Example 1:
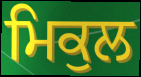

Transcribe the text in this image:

ਮਿਕੁਲ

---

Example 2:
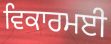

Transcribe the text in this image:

ਵਿਕਾਰਮਈ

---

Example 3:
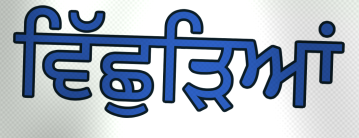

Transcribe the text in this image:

ਵਿੱਛੁੜਿਆਂ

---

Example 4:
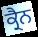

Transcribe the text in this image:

ਕ੍ਰੈਨ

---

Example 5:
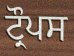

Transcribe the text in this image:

ਟ੍ਰੌਪਸ